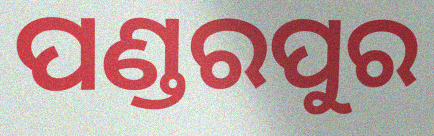
ପଣ୍ଡରପୁର